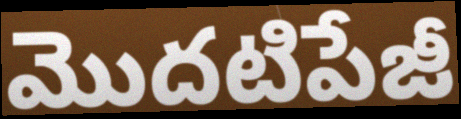
మొదటిపేజీ